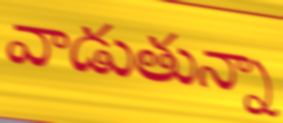
వాడుతున్నా